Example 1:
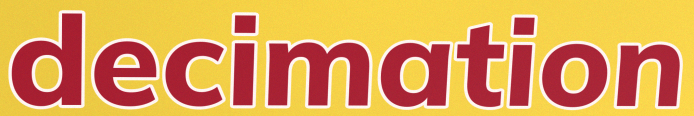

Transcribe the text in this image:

decimation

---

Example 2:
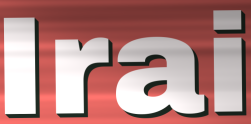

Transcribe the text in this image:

Irai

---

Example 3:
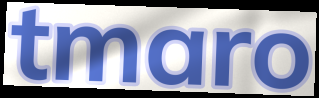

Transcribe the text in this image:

tmaro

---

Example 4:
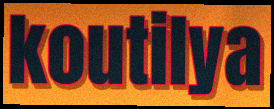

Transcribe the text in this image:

koutilya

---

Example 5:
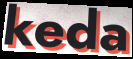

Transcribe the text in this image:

keda